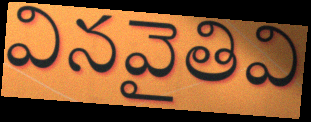
వినవైతివి